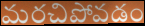
మరచిపోవడం